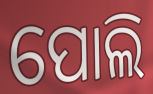
ପୋଲି